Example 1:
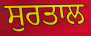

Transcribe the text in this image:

ਸੁਰਤਾਲ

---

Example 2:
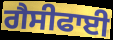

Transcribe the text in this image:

ਗੈਸੀਫਾਈ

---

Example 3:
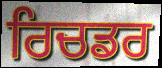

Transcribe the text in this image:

ਰਿਚਡਰ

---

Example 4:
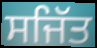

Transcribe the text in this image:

ਸਜਿੱਤ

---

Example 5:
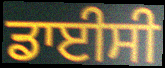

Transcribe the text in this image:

ਡਾਈਸੀ